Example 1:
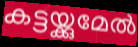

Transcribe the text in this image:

കട്ടയ്ക്കുമേൽ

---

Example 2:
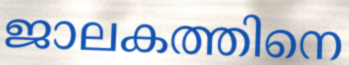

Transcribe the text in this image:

ജാലകത്തിനെ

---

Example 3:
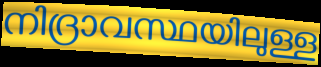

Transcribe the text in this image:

നിദ്രാവസ്ഥയിലുള്ള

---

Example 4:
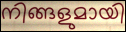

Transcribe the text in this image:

നിങ്ങളുമായി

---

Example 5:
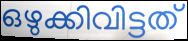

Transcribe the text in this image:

ഒഴുക്കിവിട്ടത്